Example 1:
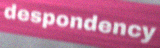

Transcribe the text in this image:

despondency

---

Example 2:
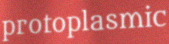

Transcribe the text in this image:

protoplasmic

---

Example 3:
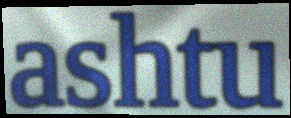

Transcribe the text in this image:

ashtu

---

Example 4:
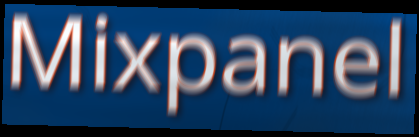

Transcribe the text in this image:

Mixpanel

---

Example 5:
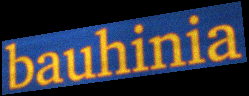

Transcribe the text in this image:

bauhinia